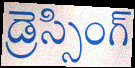
డ్రెస్సింగ్